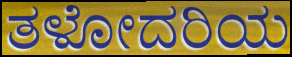
ತಳೋದರಿಯ